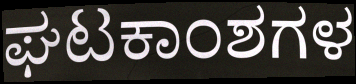
ಘಟಕಾಂಶಗಳ